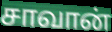
சாவான்